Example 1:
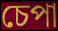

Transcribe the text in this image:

চেপা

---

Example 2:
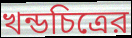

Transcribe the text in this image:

খন্ডচিত্রের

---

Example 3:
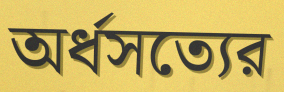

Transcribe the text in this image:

অর্ধসত্যের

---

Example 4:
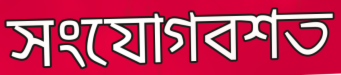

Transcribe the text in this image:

সংযোগবশত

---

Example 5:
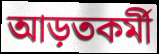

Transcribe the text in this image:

আড়তকর্মী